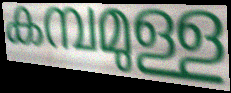
കമ്പമുള്ള